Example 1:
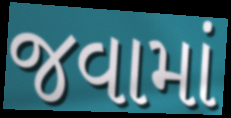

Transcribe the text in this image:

જવામાં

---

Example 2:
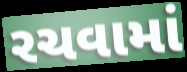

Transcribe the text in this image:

રચવામાં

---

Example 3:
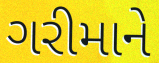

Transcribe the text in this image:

ગરીમાને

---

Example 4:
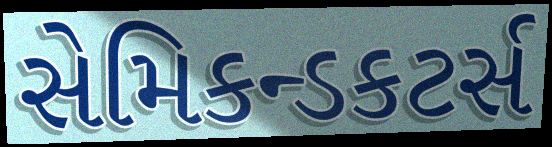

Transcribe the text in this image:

સેમિકન્ડકટર્સ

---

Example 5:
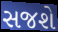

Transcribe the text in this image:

સજશે